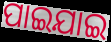
ପାଇଯାଇ